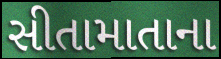
સીતામાતાના